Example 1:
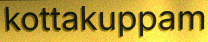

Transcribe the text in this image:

kottakuppam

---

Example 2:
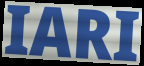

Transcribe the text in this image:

IARI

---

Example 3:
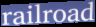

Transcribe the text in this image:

railroad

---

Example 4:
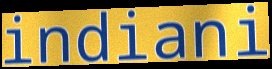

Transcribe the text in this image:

indiani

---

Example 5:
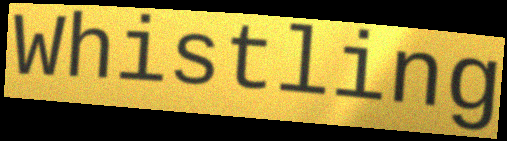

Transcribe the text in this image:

Whistling